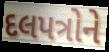
દલપત્રોને